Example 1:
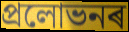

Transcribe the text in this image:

প্ৰলোভনৰ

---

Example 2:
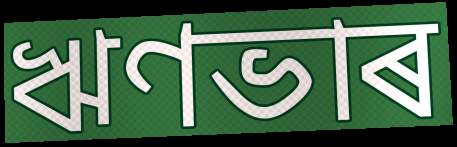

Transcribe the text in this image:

ঋণভাৰ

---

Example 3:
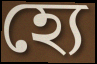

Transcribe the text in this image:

হ্যে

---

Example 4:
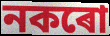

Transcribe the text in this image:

নকৰো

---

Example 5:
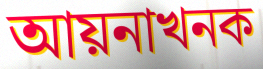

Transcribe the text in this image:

আয়নাখনক